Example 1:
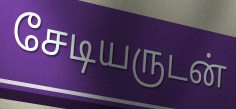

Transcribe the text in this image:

சேடியருடன்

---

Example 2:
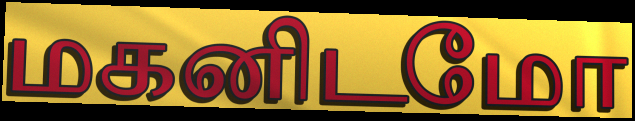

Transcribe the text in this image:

மகனிடமோ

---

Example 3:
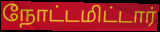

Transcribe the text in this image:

நோட்டமிட்டார்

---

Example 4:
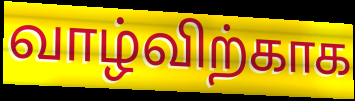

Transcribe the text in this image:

வாழ்விற்காக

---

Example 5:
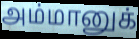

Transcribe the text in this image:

அம்மானுக்